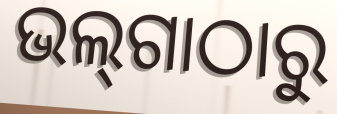
ଭଲ୍‌ଗାଠାରୁ